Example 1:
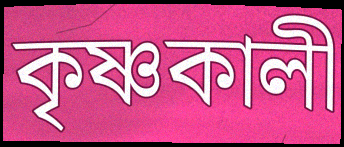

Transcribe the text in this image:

কৃষ্ণকালী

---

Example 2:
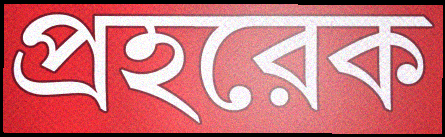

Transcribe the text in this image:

প্রহরেক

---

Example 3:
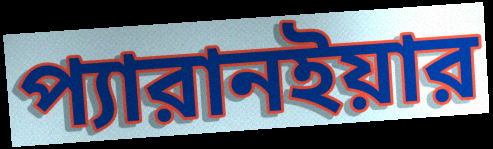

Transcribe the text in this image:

প্যারানইয়ার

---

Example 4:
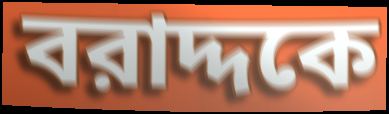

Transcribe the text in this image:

বরাদ্দকে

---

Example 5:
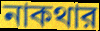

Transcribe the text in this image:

নাকথার